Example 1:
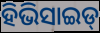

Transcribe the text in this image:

ହିଭିସାଇଡ୍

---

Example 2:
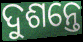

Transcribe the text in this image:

ଦୁଶନ୍ତେ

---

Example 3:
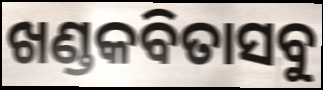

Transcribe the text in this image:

ଖଣ୍ଡକବିତାସବୁ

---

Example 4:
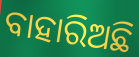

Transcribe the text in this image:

ବାହାରିଅଛି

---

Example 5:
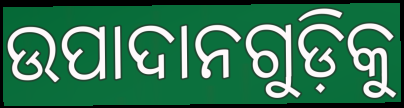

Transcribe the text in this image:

ଉପାଦାନଗୁଡ଼ିକୁ